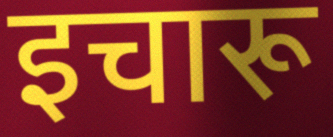
इचारू